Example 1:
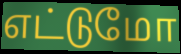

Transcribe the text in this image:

எட்டுமோ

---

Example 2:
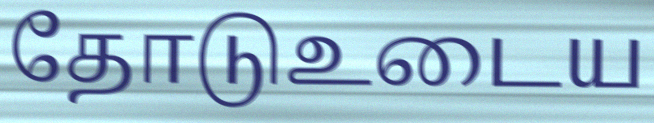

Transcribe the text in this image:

தோடுஉடைய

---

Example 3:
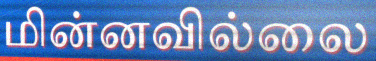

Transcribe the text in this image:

மின்னவில்லை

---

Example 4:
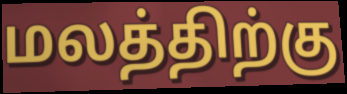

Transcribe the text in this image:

மலத்திற்கு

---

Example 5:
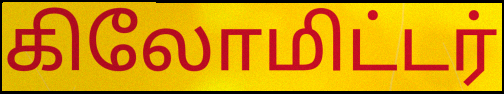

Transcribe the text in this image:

கிலோமிட்டர்